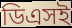
ডিএসই